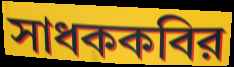
সাধককবির